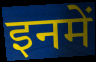
इनमें